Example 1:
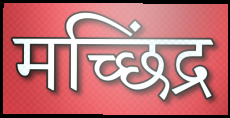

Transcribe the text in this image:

मच्छिंद्र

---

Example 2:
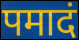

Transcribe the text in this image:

पमादं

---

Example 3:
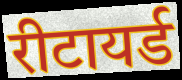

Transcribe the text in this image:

रीटायर्ड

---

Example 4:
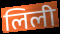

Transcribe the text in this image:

लिली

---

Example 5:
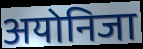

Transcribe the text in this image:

अयोनिजा